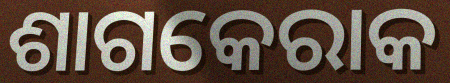
ଶାଗକେରାକ